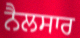
ਨੈਲਸਾਰ